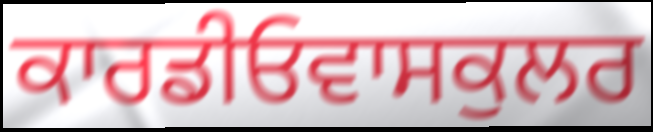
ਕਾਰਡੀਓਵਾਸਕੁਲਰ